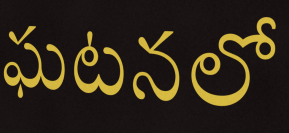
ఘటనలో